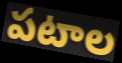
పటాల